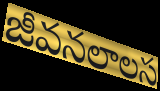
జీవనలాలస